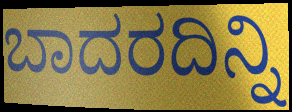
ಬಾದರದಿನ್ನಿ